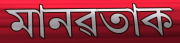
মানৱতাক